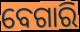
ବେଗାରି